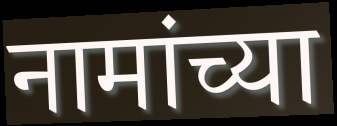
नामांच्या